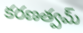
కరణత్వమ్